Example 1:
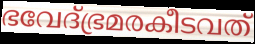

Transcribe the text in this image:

ഭവേദ്ഭ്രമരകീടവത്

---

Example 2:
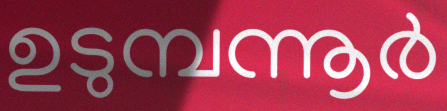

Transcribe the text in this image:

ഉടുമ്പന്നൂർ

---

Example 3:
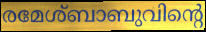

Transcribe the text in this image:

രമേശ്ബാബുവിന്റെ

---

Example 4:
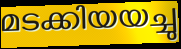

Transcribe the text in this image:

മടക്കിയയച്ചു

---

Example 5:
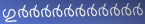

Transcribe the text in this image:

ഗുർർർർർർർർർർർ